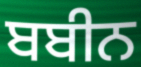
ਬਬੀਨ